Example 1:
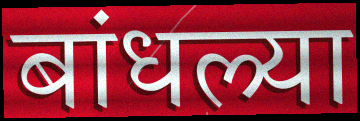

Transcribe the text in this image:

बांधल्या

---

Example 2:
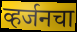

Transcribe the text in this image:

व्हर्जनचा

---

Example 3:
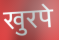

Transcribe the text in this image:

खुरपे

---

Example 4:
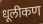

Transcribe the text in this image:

धूलीकण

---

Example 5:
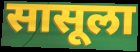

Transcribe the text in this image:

सासूला